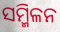
ସମ୍ମିଳନ